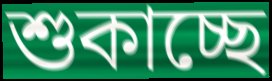
শুকাচ্ছে